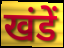
खंडें